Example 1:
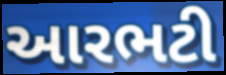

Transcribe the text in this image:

આરભટી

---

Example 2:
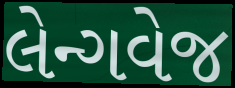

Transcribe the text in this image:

લેન્ગવેજ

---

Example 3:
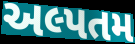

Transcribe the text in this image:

અલ્પતમ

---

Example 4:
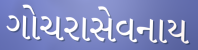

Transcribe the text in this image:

ગોચરાસેવનાય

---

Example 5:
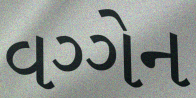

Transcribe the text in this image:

વગ્ગેન